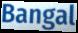
Bangal